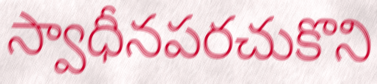
స్వాధీనపరచుకొని